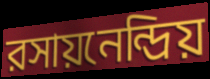
রসায়নেন্দ্রিয়